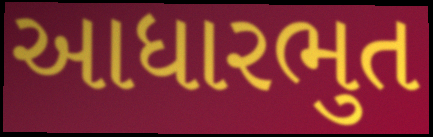
આધારભુત